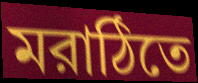
মরাঠিতে